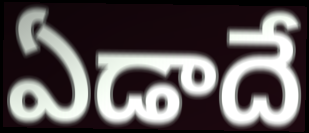
ఏడాదే